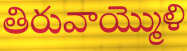
తిరువాయ్మొళి